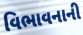
વિભાવનાની